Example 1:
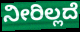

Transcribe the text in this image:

ನೀರಿಲ್ಲದೆ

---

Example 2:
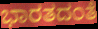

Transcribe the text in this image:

ಭಾರತದಂತೆ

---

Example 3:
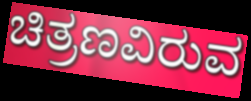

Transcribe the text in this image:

ಚಿತ್ರಣವಿರುವ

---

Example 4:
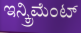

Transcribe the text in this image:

ಇನ್ಕ್ರಿಮೆಂಟ್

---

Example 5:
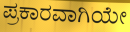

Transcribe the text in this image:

ಪ್ರಕಾರವಾಗಿಯೇ